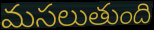
మసలుతుంది